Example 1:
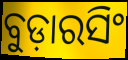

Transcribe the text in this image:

ବୁଡ଼ାରସିଂ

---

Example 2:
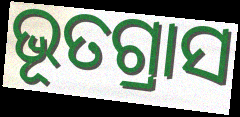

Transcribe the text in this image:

ଭୂତଗ୍ରାସ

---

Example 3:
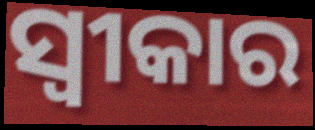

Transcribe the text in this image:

ସ୍ବୀକାର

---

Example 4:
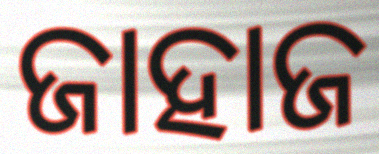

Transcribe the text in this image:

ଜାହାଜ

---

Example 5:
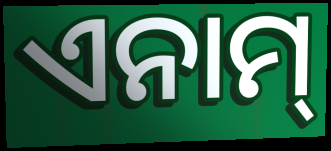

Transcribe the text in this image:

ଏନାମ୍